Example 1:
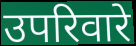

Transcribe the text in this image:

उपरिवारे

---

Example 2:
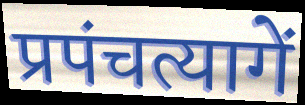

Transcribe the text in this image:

प्रपंचत्यागें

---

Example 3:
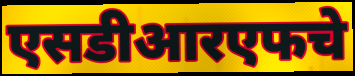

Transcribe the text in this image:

एसडीआरएफचे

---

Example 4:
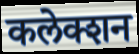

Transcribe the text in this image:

कलेक्शन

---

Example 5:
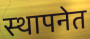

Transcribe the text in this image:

स्थापनेत